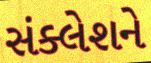
સંક્લેશને